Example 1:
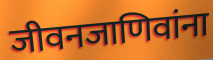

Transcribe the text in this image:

जीवनजाणिवांना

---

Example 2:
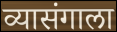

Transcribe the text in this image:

व्यासंगाला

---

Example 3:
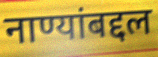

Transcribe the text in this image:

नाण्यांबद्दल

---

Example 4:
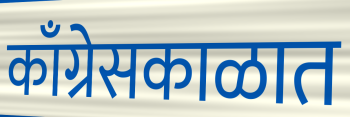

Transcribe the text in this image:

काँग्रेसकाळात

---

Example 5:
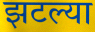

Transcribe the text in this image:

झटल्या